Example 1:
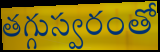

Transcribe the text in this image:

తగ్గుస్వరంతో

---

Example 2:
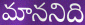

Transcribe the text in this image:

మాననిది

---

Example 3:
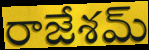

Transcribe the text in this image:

రాజేశమ్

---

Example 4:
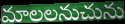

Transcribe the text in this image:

మాలలనుచును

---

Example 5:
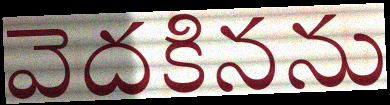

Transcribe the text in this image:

వెదకినను